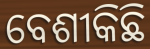
ବେଶୀକିଛି